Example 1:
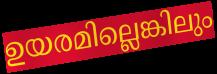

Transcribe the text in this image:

ഉയരമില്ലെങ്കിലും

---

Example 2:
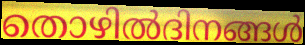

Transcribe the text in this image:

തൊഴിൽദിനങ്ങൾ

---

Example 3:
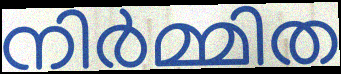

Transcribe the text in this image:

നിർമ്മിത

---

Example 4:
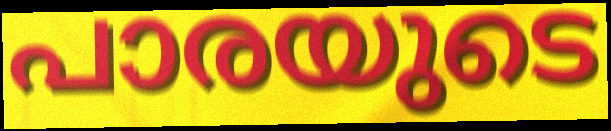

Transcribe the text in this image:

പാരയുടെ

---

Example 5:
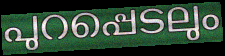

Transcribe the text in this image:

പുറപ്പെടലും